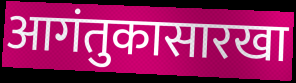
आगंतुकासारखा